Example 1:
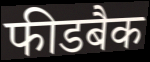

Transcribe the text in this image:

फीडबैक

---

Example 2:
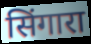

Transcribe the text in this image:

सिंगारा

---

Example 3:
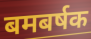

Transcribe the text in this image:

बमबर्षक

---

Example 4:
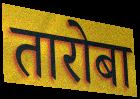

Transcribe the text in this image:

तारोबा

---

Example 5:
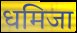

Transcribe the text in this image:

धमिजा